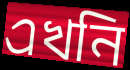
এখনি